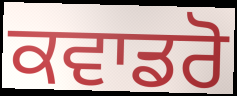
ਕਵਾਡਰੋ